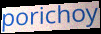
porichoy